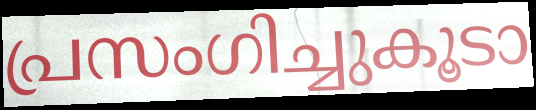
പ്രസംഗിച്ചുകൂടാ